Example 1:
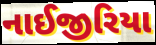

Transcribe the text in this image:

નાઈજીરિયા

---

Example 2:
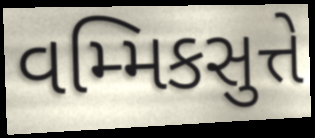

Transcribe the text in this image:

વમ્મિકસુત્તે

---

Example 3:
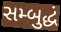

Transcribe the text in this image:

સમ્બુદ્ધં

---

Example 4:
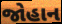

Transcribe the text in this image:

જોહાન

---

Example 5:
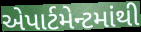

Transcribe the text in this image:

એપાર્ટમેન્ટમાંથી